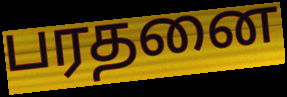
பரதனை